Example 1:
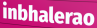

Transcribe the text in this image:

inbhalerao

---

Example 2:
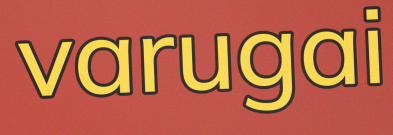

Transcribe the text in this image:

varugai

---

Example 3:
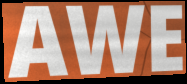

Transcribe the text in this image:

AWE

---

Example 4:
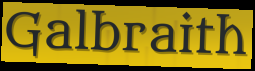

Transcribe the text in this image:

Galbraith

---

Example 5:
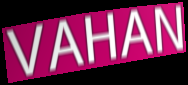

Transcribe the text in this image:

VAHAN